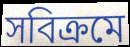
সবিক্রমে